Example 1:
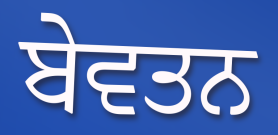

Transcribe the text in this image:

ਬੇਵਤਨ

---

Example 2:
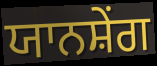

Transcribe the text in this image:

ਯਾਨਸ਼ੇਂਗ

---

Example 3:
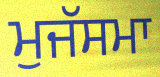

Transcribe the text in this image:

ਮੁਜੱਸਮਾ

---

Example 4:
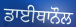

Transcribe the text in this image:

ਡਾਈਥਾਨੌਲ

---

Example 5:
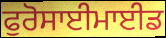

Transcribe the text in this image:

ਫੁਰੋਸਾਈਮਾਈਡ